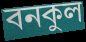
বনকুল